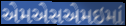
એમએસએમઇમાં